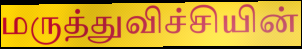
மருத்துவிச்சியின்